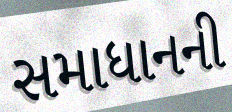
સમાધાનની